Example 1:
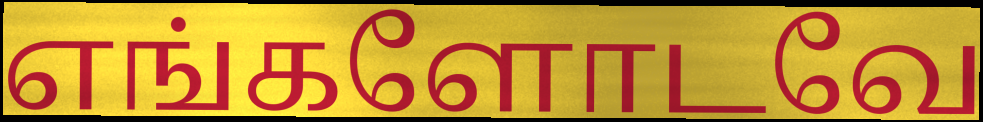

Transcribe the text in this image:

எங்களோடவே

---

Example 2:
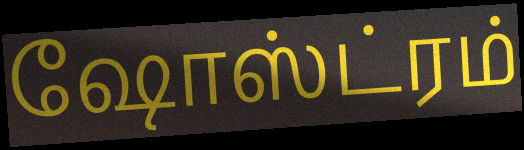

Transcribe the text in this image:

ஷோஸ்ட்ரம்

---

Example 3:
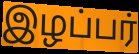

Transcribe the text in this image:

இழப்பர்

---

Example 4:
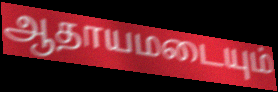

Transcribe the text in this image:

ஆதாயமடையும்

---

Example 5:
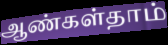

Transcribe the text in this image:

ஆண்கள்தாம்